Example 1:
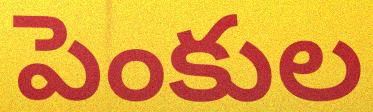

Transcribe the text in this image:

పెంకుల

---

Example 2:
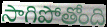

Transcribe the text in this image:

సాగిపోతోంది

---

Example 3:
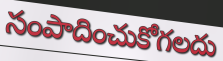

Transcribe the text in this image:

సంపాదించుకోగలదు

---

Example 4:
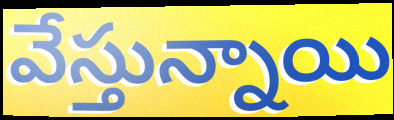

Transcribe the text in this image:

వేస్తున్నాయి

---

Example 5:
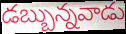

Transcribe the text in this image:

డబ్బున్నవాడు